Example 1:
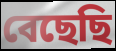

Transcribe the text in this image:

বেছেছি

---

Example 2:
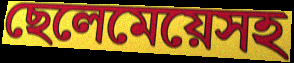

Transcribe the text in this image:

ছেলেমেয়েসহ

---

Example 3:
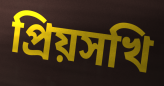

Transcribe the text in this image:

প্রিয়সখি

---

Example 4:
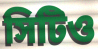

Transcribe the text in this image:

সিটিও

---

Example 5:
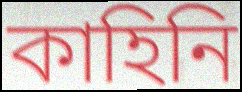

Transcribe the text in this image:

কাহিনি